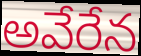
అవేరేన